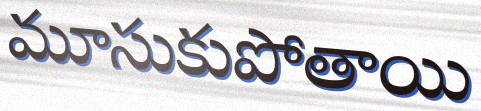
మూసుకుపోతాయి